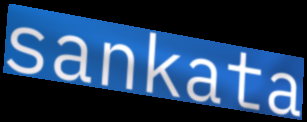
sankata